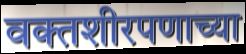
वक्तशीरपणाच्या